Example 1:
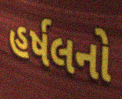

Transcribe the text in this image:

હર્ષલનો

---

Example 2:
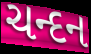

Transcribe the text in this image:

ચન્દન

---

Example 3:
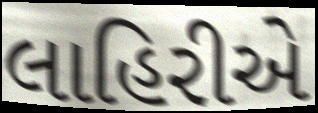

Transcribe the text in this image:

લાહિરીએ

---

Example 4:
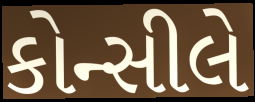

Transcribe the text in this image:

કોન્સીલે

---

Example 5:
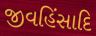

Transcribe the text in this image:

જીવહિંસાદિ